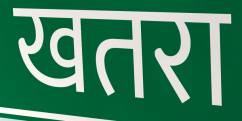
खतरा